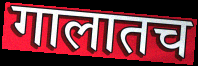
गालातच